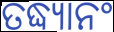
ତଦ୍ଧ୍ଯାନଂ